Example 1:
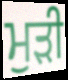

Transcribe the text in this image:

ਮੁੜੀ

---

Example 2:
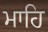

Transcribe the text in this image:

ਮਾਹਿ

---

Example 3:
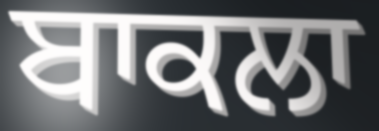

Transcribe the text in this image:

ਬਾਕਲਾ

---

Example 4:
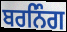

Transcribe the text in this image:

ਬਰਨਿੰਗ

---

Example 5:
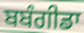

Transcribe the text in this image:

ਬਬੰਗੀਡਾ